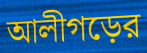
আলীগড়ের